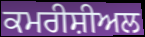
ਕਮਰੀਸ਼ੀਅਲ